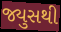
જ્યુસથી